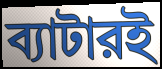
ব্যাটারই